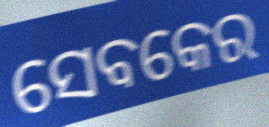
ସେବକେର